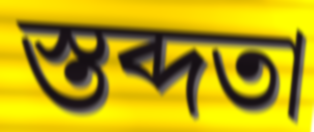
স্তব্দতা